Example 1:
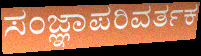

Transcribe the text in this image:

ಸಂಜ್ಞಾಪರಿವರ್ತಕ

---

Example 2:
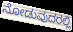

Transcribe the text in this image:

ನೋಡುವುದರಲ್ಲಿ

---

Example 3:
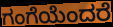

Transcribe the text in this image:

ಗಂಗೆಯೆಂದರೆ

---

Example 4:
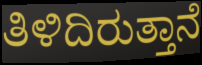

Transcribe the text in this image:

ತಿಳಿದಿರುತ್ತಾನೆ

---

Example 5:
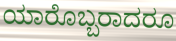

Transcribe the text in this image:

ಯಾರೊಬ್ಬರಾದರೂ